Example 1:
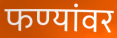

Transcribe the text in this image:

फण्यांवर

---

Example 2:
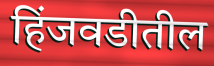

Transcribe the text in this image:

हिंजवडीतील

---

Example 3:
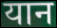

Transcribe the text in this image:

यान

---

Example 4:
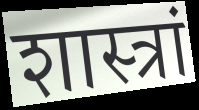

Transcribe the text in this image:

शास्त्रां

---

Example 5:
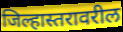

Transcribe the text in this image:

जिल्हास्तरावरील